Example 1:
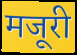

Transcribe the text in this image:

मजूरी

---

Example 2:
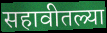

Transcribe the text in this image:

सहावीतल्या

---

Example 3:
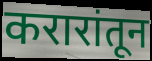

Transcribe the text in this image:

करारांतून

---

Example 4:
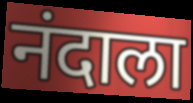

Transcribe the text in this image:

नंदाला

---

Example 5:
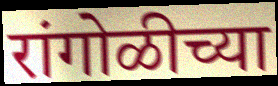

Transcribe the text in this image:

रांगोळीच्या